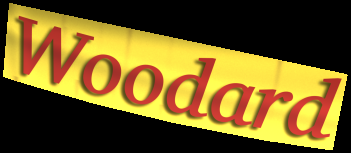
Woodard